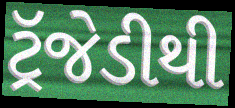
ટ્રૅજેડીથી